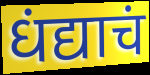
धंद्याचं